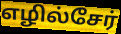
எழில்சேர்